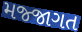
મજ્જાગત